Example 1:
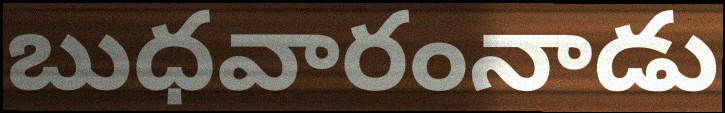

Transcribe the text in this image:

బుధవారంనాడు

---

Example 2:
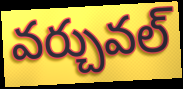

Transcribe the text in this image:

వర్చువల్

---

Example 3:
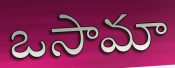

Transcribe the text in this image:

ఒసామా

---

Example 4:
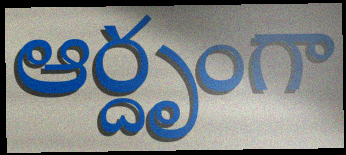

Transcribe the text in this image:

ఆర్దృంగా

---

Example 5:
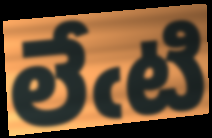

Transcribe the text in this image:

లేఁటి